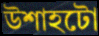
উশাহটো